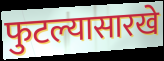
फुटल्यासारखे